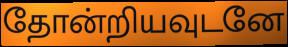
தோன்றியவுடனே